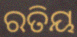
ରତିୟ